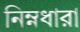
নিম্নধারা